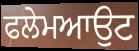
ਫਲੇਮਆਉਟ